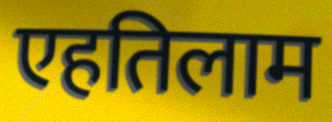
एहतिलाम